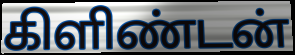
கிளிண்டன்